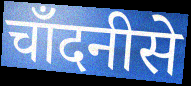
चाँदनीसे